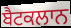
ਬੈਟਕਲਾਨ